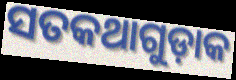
ସତକଥାଗୁଡ଼ାକ